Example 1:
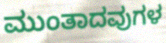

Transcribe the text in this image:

ಮುಂತಾದವುಗಳ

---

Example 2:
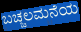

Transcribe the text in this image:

ಬಚ್ಚಲಮನೆಯ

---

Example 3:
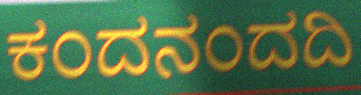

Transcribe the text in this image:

ಕಂದನಂದದಿ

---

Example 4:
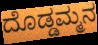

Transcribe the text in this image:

ದೊಡ್ಡಮ್ಮನ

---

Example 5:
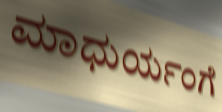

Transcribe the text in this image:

ಮಾಧುರ್ಯಂಗೆ